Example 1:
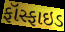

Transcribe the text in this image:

ફૉસ્ફાઇડ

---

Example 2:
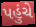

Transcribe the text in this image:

પહુંચે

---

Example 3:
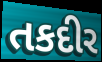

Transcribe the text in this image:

તકદીર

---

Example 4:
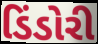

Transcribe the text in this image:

ડિંડોરી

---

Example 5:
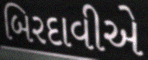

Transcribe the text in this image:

બિરદાવીએ